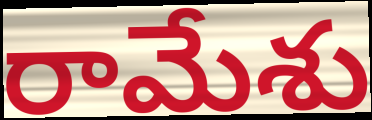
రామేశు